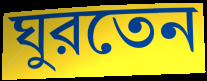
ঘুরতেন